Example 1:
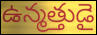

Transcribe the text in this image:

ఉన్మత్తుడై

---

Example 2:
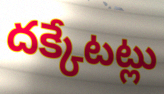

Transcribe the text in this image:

దక్కేటట్లు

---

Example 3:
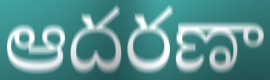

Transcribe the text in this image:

ఆదరణా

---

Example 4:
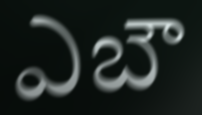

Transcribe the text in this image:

ఎబౌ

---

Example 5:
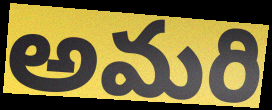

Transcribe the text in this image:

అమరి